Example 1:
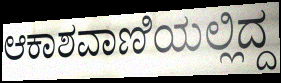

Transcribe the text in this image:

ಆಕಾಶವಾಣಿಯಲ್ಲಿದ್ದ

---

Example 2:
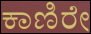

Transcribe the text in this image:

ಕಾಣಿರೇ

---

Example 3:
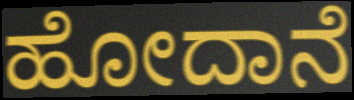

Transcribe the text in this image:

ಹೋದಾನೆ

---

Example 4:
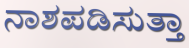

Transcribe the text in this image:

ನಾಶಪಡಿಸುತ್ತಾ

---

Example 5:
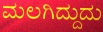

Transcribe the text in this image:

ಮಲಗಿದ್ದುದು